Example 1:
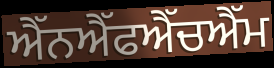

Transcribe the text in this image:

ਐੱਨਐੱਫਐੱਚਐੱਮ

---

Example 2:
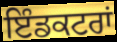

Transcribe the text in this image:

ਇੰਡਕਟਰਾਂ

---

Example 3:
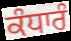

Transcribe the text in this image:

ਕੰਧਾਰੰ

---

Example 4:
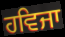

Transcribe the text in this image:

ਹਵਿਜਾ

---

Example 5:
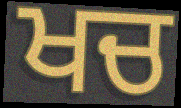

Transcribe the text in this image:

ਖਚ